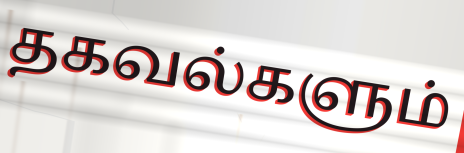
தகவல்களும்